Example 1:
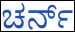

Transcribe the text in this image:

ಚರ್ನ್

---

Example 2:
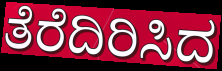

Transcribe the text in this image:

ತೆರೆದಿರಿಸಿದ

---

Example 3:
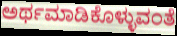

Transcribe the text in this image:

ಅರ್ಥಮಾಡಿಕೊಳ್ಳುವಂತೆ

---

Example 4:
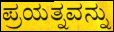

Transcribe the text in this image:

ಪ್ರಯತ್ನವನ್ನು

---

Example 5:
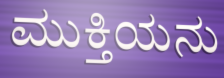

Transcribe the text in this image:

ಮುಕ್ತಿಯನು